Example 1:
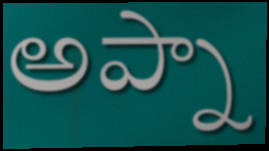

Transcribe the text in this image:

అప్నా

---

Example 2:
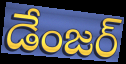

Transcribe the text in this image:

డేంజర్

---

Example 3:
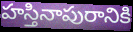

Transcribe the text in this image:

హస్తినాపురానికి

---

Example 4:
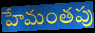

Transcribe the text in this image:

హేమంతపు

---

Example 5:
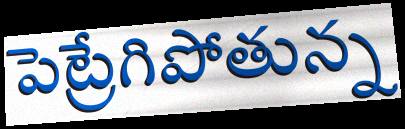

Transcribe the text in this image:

పెట్రేగిపోతున్న